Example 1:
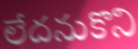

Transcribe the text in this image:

లేదనుకొని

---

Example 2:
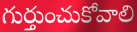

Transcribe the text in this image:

గుర్తుంచుకోవాలి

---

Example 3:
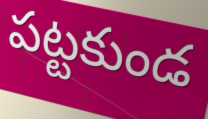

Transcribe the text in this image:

పట్టకుండ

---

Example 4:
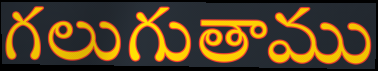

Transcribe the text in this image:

గలుగుతాము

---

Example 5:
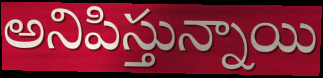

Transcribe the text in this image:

అనిపిస్తున్నాయి